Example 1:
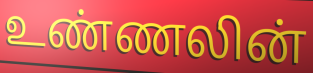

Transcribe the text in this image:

உண்ணலின்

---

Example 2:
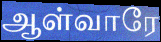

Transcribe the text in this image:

ஆள்வாரே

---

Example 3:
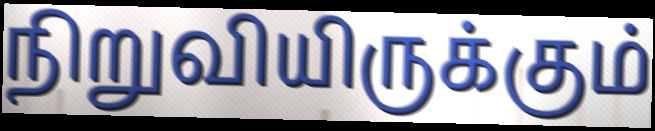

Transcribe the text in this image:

நிறுவியிருக்கும்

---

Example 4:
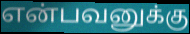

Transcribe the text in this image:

என்பவனுக்கு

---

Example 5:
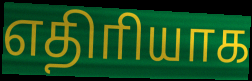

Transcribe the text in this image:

எதிரியாக